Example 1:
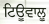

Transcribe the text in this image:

ਟਿਊਵਾਲੂ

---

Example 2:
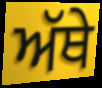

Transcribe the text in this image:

ਅੱਥੇ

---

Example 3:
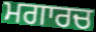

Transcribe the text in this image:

ਮਗਾਰਚ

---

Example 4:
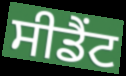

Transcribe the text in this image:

ਸੀਡੈਂਟ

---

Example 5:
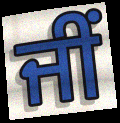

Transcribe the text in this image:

ਜੀਂ